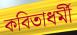
কবিতাধর্মী